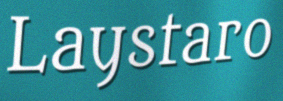
Laystaro